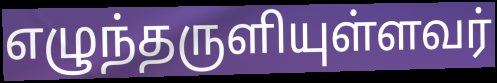
எழுந்தருளியுள்ளவர்